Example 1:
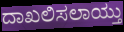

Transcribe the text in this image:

ದಾಖಲಿಸಲಾಯ್ತು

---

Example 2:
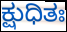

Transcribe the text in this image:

ಕ್ಷುಧಿತಃ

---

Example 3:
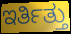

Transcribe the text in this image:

ಇರ್ತಿತ್ತು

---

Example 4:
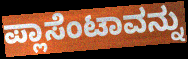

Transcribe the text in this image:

ಪ್ಲಾಸೆಂಟಾವನ್ನು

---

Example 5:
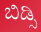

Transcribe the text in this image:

ಬಿಡ್ಸಿ